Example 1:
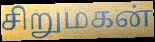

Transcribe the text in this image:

சிறுமகன்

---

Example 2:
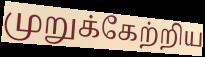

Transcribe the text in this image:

முறுக்கேற்றிய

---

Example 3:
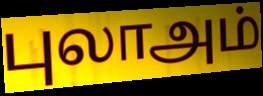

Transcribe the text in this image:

புலாஅம்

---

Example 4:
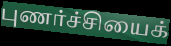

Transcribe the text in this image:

புணர்ச்சியைக்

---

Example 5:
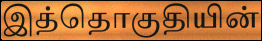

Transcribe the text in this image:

இத்தொகுதியின்